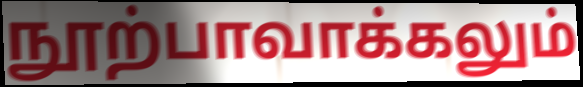
நூற்பாவாக்கலும்